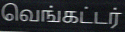
வெங்கட்டர்